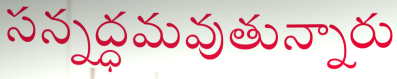
సన్నద్ధమవుతున్నారు